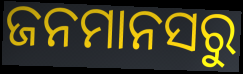
ଜନମାନସରୁ